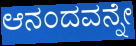
ಆನಂದವನ್ನೇ